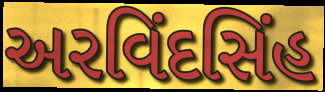
અરવિંદસિંહ